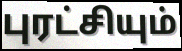
புரட்சியும்